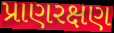
પ્રાણરક્ષણ